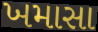
ખમાસા